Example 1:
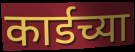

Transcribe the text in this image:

कार्डच्या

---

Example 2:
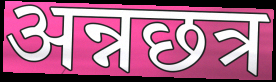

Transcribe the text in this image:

अन्नछत्र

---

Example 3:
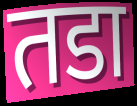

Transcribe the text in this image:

तडा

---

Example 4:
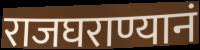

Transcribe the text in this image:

राजघराण्यानं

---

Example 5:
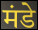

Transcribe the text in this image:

मंडे